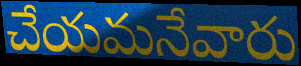
చేయమనేవారు